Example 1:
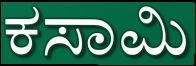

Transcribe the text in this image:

ಕಸಾಮಿ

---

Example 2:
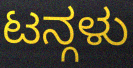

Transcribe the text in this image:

ಟನ್ಗಳು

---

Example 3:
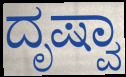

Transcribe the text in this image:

ದೃಷ್ವಾ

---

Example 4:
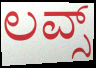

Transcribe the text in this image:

ಲವ್ಸ್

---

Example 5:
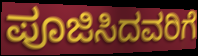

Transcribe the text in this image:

ಪೂಜಿಸಿದವರಿಗೆ